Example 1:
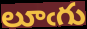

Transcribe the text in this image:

లూఁగు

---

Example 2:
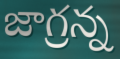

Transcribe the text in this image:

జాగ్రన్న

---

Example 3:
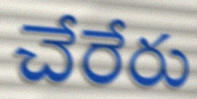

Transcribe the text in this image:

చేరేరు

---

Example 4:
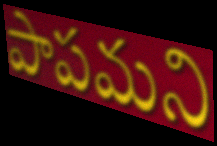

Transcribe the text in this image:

పాపమని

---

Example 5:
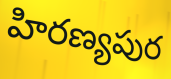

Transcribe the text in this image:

హిరణ్యపుర